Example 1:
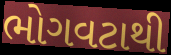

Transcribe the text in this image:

ભોગવટાથી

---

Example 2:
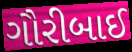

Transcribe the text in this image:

ગૌરીબાઈ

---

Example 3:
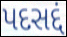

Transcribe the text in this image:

પદસદ્દં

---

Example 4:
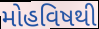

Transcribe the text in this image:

મોહવિષથી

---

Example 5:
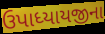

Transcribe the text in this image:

ઉપાધ્યાયજીના